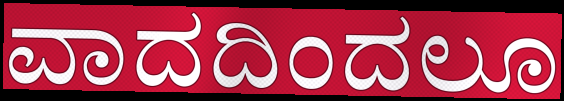
ವಾದದಿಂದಲೂ